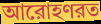
আরোহণরত